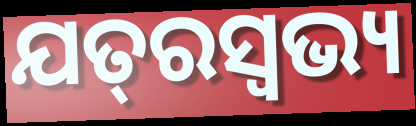
ଯତ୍‌ରସ୍ଵଭ୍ୟ